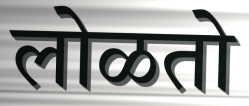
लोळतो